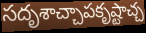
సదృశాచ్చాపకృష్టాచ్చ